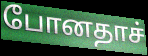
போனதாச்